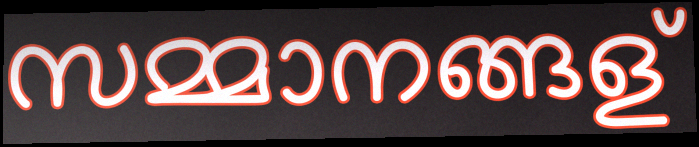
സമ്മാനങ്ങള്